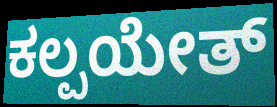
ಕಲ್ಪಯೇತ್